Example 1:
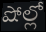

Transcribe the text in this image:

షోల్లో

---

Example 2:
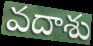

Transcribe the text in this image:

వదాశు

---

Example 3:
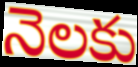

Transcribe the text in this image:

నెలకు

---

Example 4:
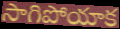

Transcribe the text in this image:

సాగిపోయాక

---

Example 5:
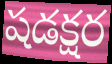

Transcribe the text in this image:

షడక్షర